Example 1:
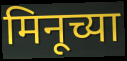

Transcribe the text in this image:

मिनूच्या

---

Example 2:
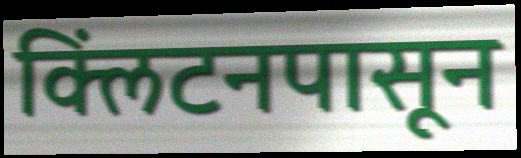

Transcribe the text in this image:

क्लिंटनपासून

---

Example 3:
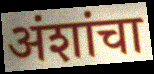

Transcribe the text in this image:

अंशांचा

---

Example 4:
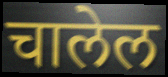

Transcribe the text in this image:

चालेल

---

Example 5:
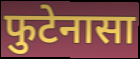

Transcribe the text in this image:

फुटेनासा